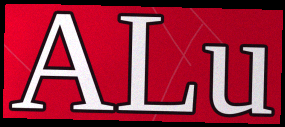
ALu